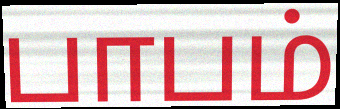
பாபம்